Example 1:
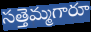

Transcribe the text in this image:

సత్తెమ్మగారూ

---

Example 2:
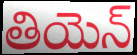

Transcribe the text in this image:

తియెన్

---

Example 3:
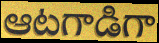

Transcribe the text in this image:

ఆటగాడిగా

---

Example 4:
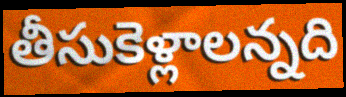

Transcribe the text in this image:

తీసుకెళ్లాలన్నది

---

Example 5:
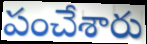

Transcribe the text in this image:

పంచేశారు